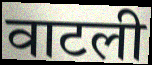
वाटली